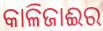
କାଳିଜାଈର